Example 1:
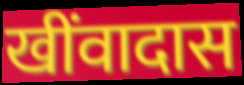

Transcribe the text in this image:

खींवादास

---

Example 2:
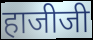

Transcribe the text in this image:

हाजीजी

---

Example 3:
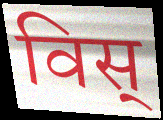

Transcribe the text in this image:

विस्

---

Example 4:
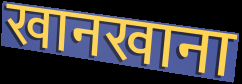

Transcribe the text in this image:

खानखाना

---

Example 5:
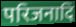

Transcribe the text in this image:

परिजनादि